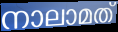
നാലാമത്